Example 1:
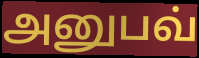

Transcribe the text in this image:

அனுபவ்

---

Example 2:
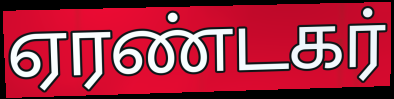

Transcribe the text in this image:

ஏரண்டகர்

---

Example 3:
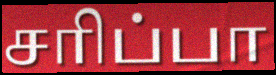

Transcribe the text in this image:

சரிப்பா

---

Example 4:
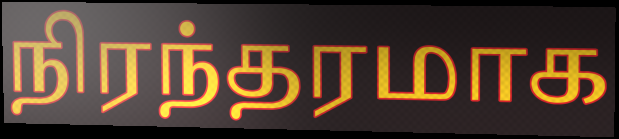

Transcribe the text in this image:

நிரந்தரமாக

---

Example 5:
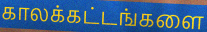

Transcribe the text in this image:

காலக்கட்டங்களை